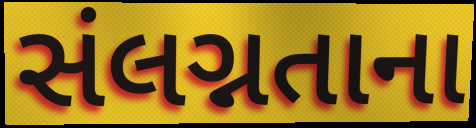
સંલગ્નતાના